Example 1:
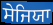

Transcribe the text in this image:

ਸੇਜਿਯਾ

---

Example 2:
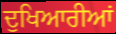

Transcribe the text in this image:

ਦੁਖਿਆਰੀਆਂ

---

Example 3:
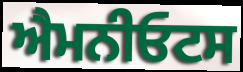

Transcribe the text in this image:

ਐਮਨੀਓਟਸ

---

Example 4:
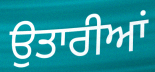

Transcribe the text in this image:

ਉਤਾਰੀਆਂ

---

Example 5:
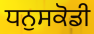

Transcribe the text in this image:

ਧਨੁਸਕੋਡੀ